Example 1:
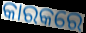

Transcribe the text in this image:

କାରକରେ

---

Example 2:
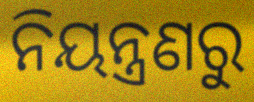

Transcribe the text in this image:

ନିୟନ୍ତ୍ରଣରୁ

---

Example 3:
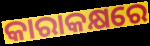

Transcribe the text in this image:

କାରାକକ୍ଷରେ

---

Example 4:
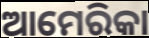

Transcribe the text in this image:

ଆମେରିକା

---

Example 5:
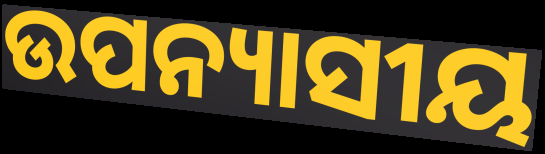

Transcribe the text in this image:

ଉପନ୍ୟାସୀୟ